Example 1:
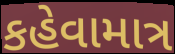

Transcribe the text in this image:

કહેવામાત્ર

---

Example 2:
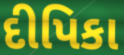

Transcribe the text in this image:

દીપિકા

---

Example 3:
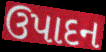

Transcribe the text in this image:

ઉપાદન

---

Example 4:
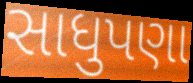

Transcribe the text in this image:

સાધુપણા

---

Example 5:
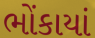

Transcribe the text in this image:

ભોંકાયાં